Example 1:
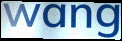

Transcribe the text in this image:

wang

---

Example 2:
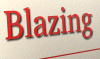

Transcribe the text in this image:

Blazing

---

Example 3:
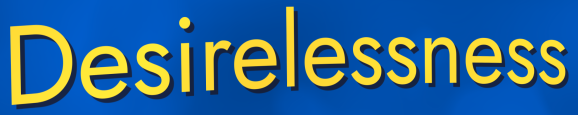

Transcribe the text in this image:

Desirelessness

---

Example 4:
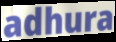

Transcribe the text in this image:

adhura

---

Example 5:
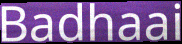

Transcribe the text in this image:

Badhaai